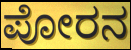
ಪೋರನ